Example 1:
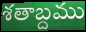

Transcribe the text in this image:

శతాబ్దము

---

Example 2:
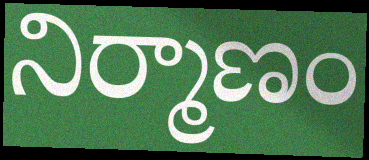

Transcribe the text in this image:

నిర్మాణం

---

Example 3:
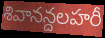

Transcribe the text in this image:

శివానన్దలహరీ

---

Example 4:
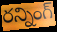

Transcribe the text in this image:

రన్నింగ్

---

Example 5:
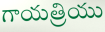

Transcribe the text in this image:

గాయత్రియు